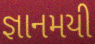
જ્ઞાનમયી